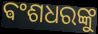
ଵଂଶଧରଙ୍କୁ